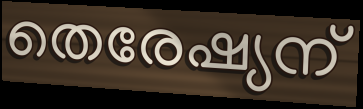
തെരേഷ്യന്